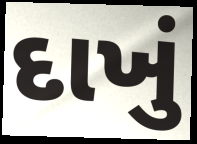
દાખું